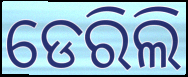
ଡେରିଲି